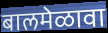
बालमेळावा